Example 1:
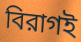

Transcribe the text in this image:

বিরাগই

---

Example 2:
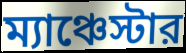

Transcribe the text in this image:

ম্যাঞ্চেস্টার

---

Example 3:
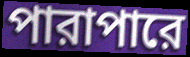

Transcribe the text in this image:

পারাপারে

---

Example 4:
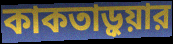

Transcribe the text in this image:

কাকতাড়ুয়ার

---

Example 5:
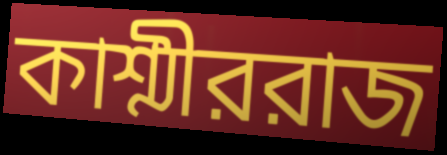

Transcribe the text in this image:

কাশ্মীররাজ